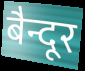
बैन्दूर